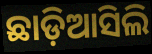
ଛାଡ଼ିଆସିଲି